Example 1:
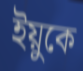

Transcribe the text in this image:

ইয়ুকে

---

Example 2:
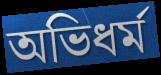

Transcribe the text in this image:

অভিধর্ম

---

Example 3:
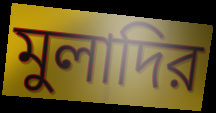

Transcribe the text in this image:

মুলাদির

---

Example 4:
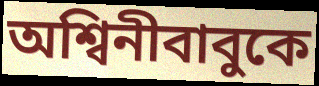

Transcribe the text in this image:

অশ্বিনীবাবুকে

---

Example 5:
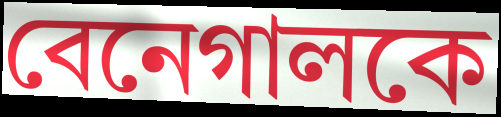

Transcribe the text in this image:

বেনেগালকে